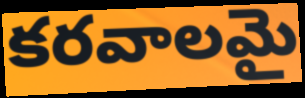
కరవాలమై